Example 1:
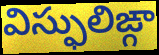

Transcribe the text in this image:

విస్ఫులిఙ్గా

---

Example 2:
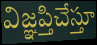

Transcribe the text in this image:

విజ్ఞప్తిచేస్తూ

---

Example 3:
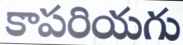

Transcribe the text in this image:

కాపరియగు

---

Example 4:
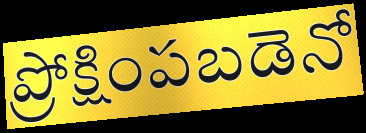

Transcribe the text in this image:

ప్రోక్షింపబడెనో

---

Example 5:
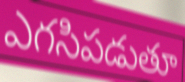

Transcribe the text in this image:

ఎగసిపడుతూ